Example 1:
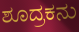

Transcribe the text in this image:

ಶೂದ್ರಕನು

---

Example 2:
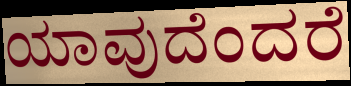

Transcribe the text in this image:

ಯಾವುದೆಂದರೆ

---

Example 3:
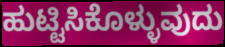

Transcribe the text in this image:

ಹುಟ್ಟಿಸಿಕೊಳ್ಳುವುದು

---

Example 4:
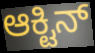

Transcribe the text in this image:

ಆಕ್ಟಿನ್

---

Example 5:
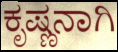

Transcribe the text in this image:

ಕೃಷ್ಣನಾಗಿ